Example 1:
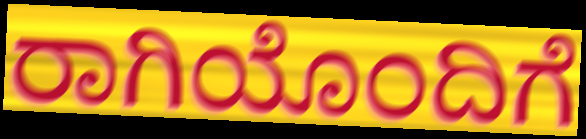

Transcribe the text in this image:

ರಾಗಿಯೊಂದಿಗೆ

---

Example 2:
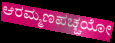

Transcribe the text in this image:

ಆರಮ್ಮಣಪಚ್ಚಯೋ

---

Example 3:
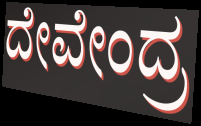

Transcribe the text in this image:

ದೇವೇಂದ್ರ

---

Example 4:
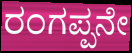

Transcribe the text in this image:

ರಂಗಪ್ಪನೇ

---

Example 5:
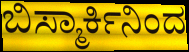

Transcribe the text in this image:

ಬಿಸ್ಮಾರ್ಕಿನಿಂದ